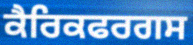
ਕੈਰਿਕਫਰਗਸ